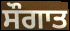
ਸੌਗਾਤ